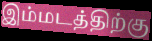
இம்மடத்திற்கு